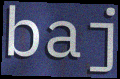
baj